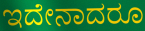
ಇದೇನಾದರೂ